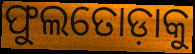
ଫୁଲତୋଡ଼ାକୁ